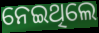
ନେଇଥିଲେ